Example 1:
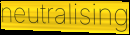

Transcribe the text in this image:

neutralising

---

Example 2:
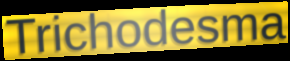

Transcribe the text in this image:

Trichodesma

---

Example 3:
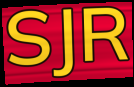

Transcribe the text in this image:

SJR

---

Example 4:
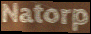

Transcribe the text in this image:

Natorp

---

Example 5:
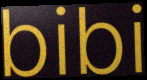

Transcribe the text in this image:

bibi